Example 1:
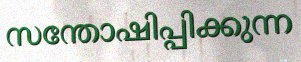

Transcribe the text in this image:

സന്തോഷിപ്പിക്കുന്ന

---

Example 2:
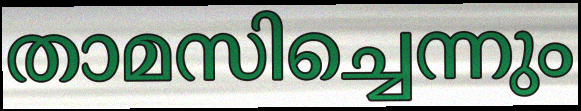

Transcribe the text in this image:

താമസിച്ചെന്നും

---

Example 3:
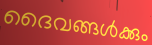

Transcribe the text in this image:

ദൈവങ്ങൾക്കും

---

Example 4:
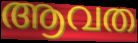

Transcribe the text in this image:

ആവത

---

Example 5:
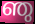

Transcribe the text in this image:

ഞു